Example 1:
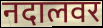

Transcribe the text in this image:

नदालवर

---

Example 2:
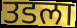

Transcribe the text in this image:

उडला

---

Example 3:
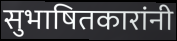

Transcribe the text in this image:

सुभाषितकारांनी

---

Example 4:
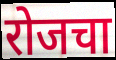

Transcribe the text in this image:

रोजचा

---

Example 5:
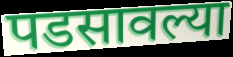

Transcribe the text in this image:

पडसावल्या